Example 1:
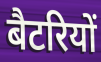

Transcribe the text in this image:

बैटरियों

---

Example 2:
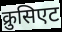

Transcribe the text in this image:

क्रुसिएट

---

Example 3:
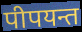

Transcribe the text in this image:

पीपयन्त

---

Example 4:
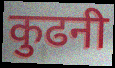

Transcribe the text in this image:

कुढनी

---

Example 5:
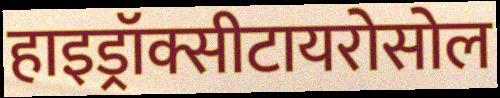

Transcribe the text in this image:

हाइड्रॉक्सीटायरोसोल